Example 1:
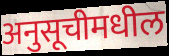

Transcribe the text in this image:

अनुसूचीमधील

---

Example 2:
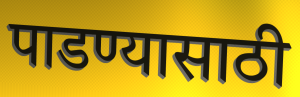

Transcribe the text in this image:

पाडण्यासाठी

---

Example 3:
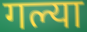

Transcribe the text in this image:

गल्या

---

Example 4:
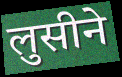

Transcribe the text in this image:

लुसीने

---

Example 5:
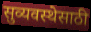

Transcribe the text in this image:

सुव्यवस्थेसाठी